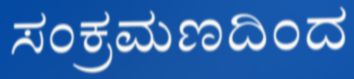
ಸಂಕ್ರಮಣದಿಂದ